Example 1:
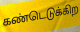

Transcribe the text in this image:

கண்டெடுக்கிற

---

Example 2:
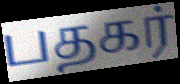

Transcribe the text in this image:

பதகர்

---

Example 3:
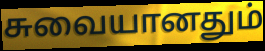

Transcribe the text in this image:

சுவையானதும்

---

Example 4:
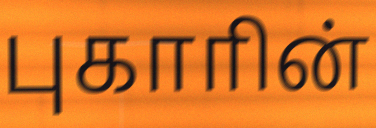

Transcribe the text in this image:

புகாரின்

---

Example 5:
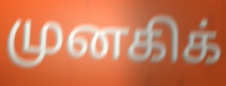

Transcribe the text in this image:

முனகிக்